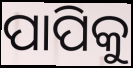
ପାପିକୁ